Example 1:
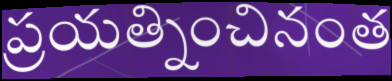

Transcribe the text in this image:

ప్రయత్నించినంత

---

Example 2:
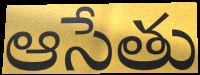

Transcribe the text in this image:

ఆసేతు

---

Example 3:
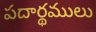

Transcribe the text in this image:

పదార్థములు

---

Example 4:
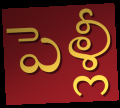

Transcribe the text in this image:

పెళ్లీ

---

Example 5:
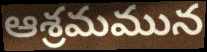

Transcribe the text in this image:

ఆశ్రమమున